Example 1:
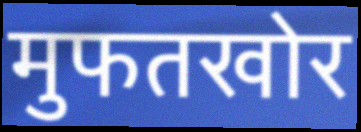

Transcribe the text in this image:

मुफतखोर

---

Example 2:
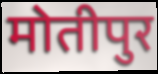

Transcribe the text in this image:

मोतीपुर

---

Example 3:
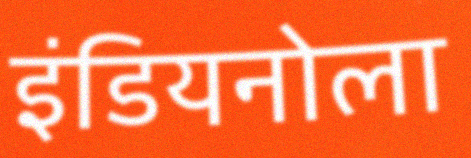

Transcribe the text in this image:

इंडियनोला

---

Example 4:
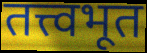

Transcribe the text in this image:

तत्त्वभूत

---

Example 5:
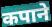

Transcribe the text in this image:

कपाने